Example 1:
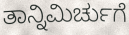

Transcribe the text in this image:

ತಾನ್ನಿಮಿರ್ಚುಗೆ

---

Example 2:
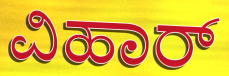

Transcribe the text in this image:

ವಿಹಾರ್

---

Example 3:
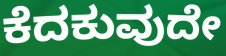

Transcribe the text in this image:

ಕೆದಕುವುದೇ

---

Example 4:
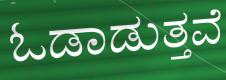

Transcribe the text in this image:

ಓಡಾಡುತ್ತವೆ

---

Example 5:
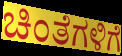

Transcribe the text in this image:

ಚಿಂತೆಗಳಿಗೆ